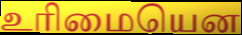
உரிமையென